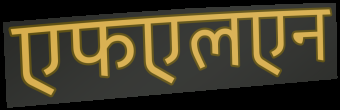
एफएलएन